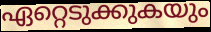
ഏറ്റെടുക്കുകയും